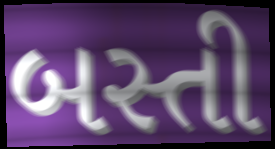
બસ્તી